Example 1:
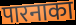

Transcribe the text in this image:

पारनाका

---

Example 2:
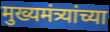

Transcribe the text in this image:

मुख्यमंत्र्यांच्या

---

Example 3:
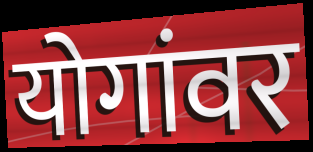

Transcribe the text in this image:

योगांवर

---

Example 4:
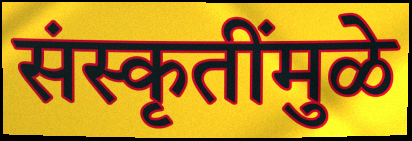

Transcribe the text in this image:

संस्कृतींमुळे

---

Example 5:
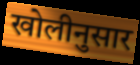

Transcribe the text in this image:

खोलीनुसार